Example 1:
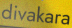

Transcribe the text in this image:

divakara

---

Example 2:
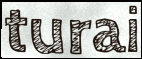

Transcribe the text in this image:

turai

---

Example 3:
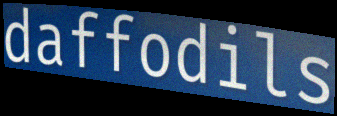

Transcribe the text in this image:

daffodils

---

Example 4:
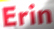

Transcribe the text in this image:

Erin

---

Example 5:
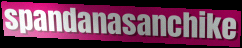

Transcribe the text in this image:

spandanasanchike